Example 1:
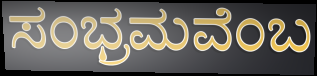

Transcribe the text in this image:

ಸಂಭ್ರಮವೆಂಬ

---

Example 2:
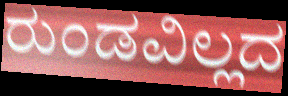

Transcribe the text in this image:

ರುಂಡವಿಲ್ಲದ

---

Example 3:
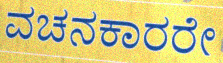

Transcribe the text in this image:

ವಚನಕಾರರೇ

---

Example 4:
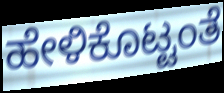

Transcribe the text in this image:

ಹೇಳಿಕೊಟ್ಟಂತೆ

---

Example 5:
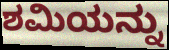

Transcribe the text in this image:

ಶಮಿಯನ್ನು